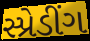
સ્પ્રેડીંગ